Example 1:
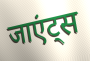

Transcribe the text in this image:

जाएंट्स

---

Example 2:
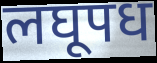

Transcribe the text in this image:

लघूपध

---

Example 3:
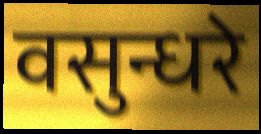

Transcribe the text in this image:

वसुन्धरे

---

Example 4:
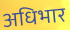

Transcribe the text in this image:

अधिभार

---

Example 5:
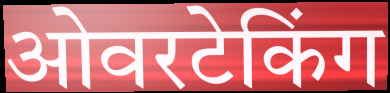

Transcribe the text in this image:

ओवरटेकिंग